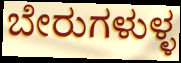
ಬೇರುಗಳುಳ್ಳ